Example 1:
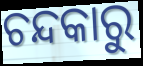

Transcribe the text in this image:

ଚନ୍ଦକାରୁ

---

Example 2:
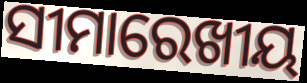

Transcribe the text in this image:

ସୀମାରେଖୀୟ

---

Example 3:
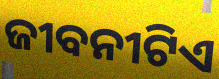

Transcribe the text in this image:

ଜୀବନୀଟିଏ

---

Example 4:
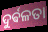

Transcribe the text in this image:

ଦୁର୍ଵଳତା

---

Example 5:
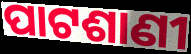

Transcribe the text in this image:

ପାଟଶାଣୀ